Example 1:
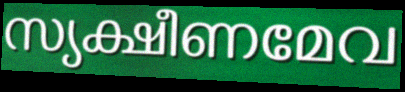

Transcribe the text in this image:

സ്യക്ഷീണമേവ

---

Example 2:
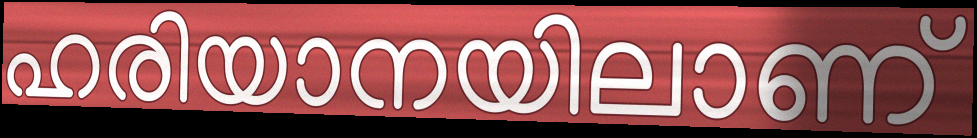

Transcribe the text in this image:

ഹരിയാനയിലാണ്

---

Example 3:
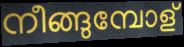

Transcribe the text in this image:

നീങ്ങുമ്പോള്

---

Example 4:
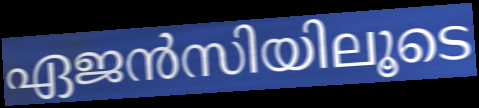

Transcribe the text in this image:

ഏജൻസിയിലൂടെ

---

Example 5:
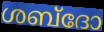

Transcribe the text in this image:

ശബ്ദോ